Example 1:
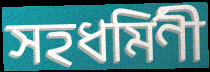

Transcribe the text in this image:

সহধর্মিণী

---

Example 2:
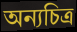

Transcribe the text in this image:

অন্যচিত্র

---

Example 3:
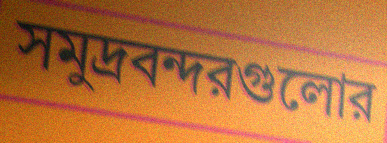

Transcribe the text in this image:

সমুদ্রবন্দরগুলোর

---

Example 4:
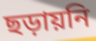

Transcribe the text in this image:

ছড়ায়নি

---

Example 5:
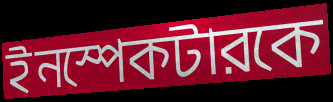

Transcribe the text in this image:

ইনস্পেকটারকে